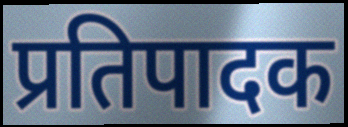
प्रतिपादक